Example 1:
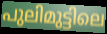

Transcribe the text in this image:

പുലിമുട്ടിലെ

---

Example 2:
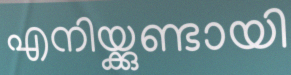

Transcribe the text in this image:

എനിയ്ക്കുണ്ടായി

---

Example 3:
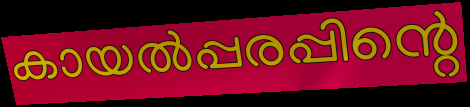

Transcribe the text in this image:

കായൽപ്പരപ്പിന്റെ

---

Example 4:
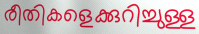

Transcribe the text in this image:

രീതികളെക്കുറിച്ചുള്ള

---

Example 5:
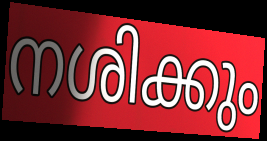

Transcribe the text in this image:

നശിക്കും